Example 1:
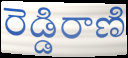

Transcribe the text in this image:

రెడ్డిరాణి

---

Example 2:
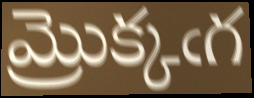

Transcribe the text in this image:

మ్రొక్కఁగ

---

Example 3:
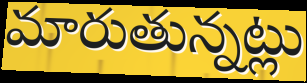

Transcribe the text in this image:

మారుతున్నట్లు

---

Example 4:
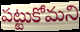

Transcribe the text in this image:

పట్టుకోమని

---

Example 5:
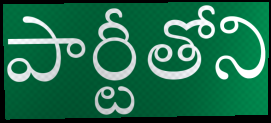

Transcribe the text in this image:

పార్టీతోని